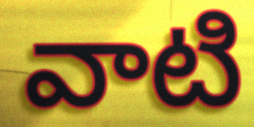
వాటి